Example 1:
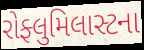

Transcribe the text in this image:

રોફ્લુમિલાસ્ટના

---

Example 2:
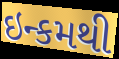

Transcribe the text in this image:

ઇન્કમથી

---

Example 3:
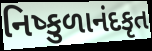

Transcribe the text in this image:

નિષ્કુળાનંદકૃત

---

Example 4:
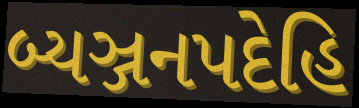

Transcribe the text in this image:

બ્યઞ્જનપદેહિ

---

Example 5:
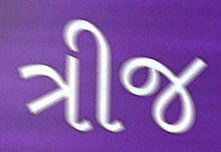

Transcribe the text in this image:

ત્રીજ